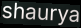
shaurya